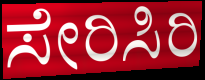
ಸೇರಿಸಿರಿ